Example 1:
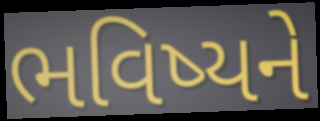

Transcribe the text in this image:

ભવિષ્યને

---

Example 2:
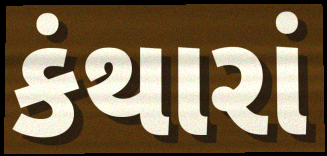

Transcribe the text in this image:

કંથારાં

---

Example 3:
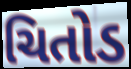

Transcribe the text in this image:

ચિતોડ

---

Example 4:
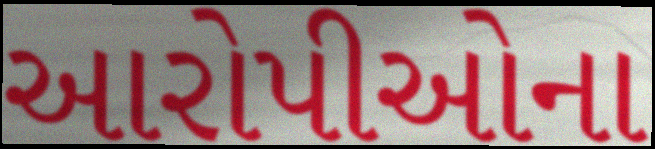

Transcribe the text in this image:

આરોપીઓના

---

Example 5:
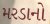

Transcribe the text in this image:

મરડાનો